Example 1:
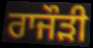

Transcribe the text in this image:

ਰਾਜੌੜੀ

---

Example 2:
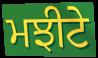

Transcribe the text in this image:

ਮਝੀਟੇ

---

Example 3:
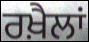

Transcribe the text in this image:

ਰਖ਼ੈਲਾਂ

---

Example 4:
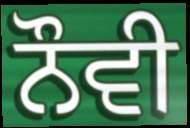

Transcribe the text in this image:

ਨੌਵੀ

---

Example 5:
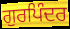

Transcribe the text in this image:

ਗੁਰਪਿੰਦਰ